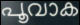
പൂവാക